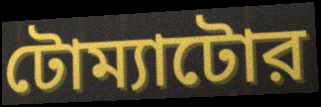
টোম্যাটোর